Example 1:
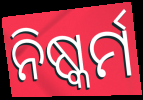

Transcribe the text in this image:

ନିଷ୍କର୍ମ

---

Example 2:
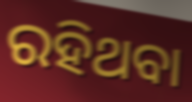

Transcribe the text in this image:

ରହିଥବା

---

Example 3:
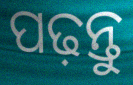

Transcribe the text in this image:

ପଢ଼ନ୍ତୁ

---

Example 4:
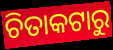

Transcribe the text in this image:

ଚିତାକଟାରୁ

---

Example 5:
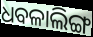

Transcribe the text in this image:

ଧବଳାଲିଙ୍ଗ